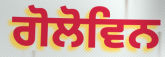
ਗੋਲੋਵਿਨ